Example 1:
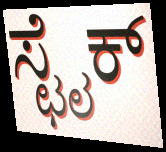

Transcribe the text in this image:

ಸ್ಟೈಕ್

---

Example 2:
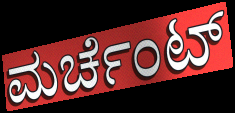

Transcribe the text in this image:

ಮರ್ಚೆಂಟ್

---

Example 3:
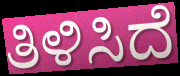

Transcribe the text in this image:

ತಿಳಿಸಿದೆ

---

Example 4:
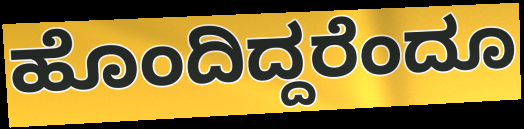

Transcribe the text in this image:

ಹೊಂದಿದ್ದರೆಂದೂ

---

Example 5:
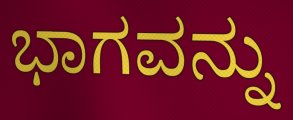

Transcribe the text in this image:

ಭಾಗವನ್ನು